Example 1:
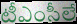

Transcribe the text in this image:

టీఎంసీలే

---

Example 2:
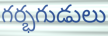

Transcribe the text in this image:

గర్భగుడులు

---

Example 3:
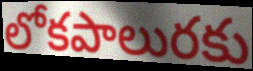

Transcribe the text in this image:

లోకపాలురకు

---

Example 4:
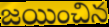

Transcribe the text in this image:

జయించిన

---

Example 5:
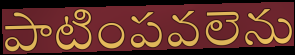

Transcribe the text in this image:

పాటింపవలెను